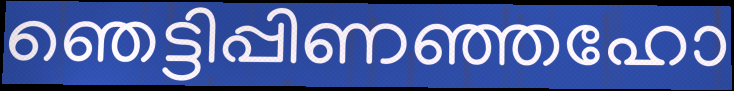
ഞെട്ടിപ്പിണഞ്ഞഹോ